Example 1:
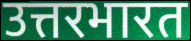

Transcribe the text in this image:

उत्तरभारत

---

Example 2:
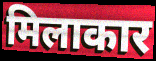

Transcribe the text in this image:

मिलाकार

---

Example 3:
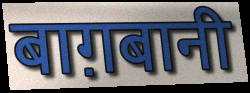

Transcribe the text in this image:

बाग़बानी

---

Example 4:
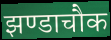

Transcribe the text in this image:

झण्डाचौक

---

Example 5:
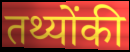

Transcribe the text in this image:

तथ्योंकी